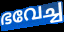
ഭവേച്ച